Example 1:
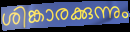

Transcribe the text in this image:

ശിങ്കാരക്കുന്നും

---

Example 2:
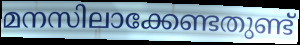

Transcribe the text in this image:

മനസിലാക്കേണ്ടതുണ്ട്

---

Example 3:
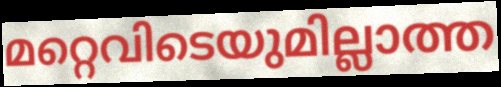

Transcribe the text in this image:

മറ്റെവിടെയുമില്ലാത്ത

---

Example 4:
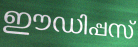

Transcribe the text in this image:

ഈഡിപ്പസ്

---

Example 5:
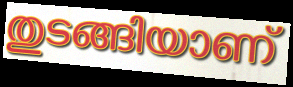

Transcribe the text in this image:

തുടങ്ങിയാണ്